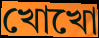
খোখো